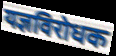
यज्ञविरोधक